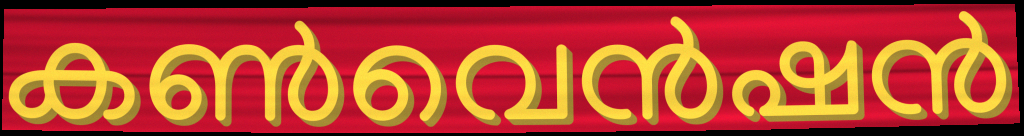
കൺവെൻഷൻ